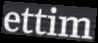
ettim